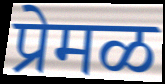
प्रेमळ